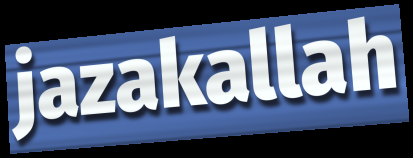
jazakallah